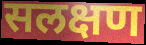
सलक्षण